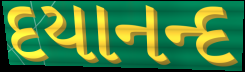
દયાનન્દ